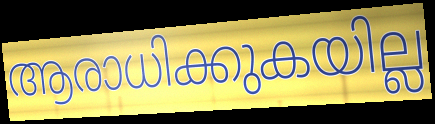
ആരാധിക്കുകയില്ല